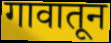
गावातून